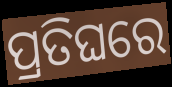
ପ୍ରତିଘରେ